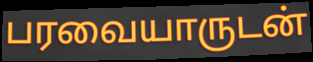
பரவையாருடன்